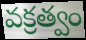
వక్రత్వం